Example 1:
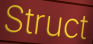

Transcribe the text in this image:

Struct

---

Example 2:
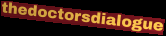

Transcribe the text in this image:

thedoctorsdialogue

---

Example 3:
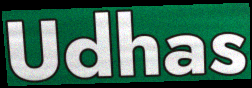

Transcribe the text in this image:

Udhas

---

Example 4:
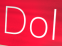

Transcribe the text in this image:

Dol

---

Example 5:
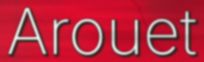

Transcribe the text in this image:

Arouet